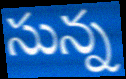
సున్న